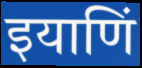
इयाणिं